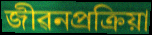
জীৱনপ্ৰক্ৰিয়া